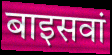
बाइसवां